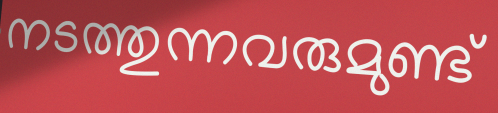
നടത്തുന്നവരുമുണ്ട്